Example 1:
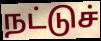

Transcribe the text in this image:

நட்டுச்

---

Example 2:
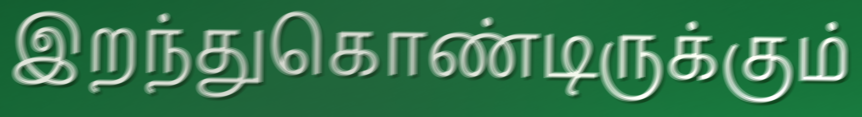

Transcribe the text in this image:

இறந்துகொண்டிருக்கும்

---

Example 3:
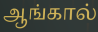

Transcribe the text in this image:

ஆங்கால்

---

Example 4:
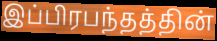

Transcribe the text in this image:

இப்பிரபந்தத்தின்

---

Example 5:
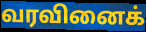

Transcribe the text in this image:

வரவினைக்